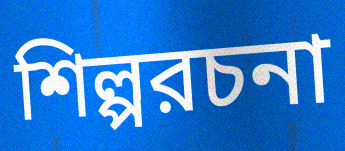
শিল্পরচনা